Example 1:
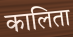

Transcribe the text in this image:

कालिता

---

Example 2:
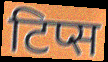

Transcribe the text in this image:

टिप्स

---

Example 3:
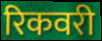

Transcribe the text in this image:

रिकवरी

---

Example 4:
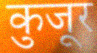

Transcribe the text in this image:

कुजूर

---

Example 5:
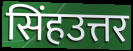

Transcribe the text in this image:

सिंहउत्तर